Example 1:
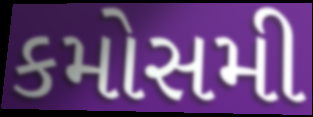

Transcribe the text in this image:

કમોસમી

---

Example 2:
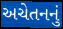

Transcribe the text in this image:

અચેતનનું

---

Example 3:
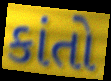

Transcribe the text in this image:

કાંતો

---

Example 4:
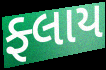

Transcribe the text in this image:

ફ્લાય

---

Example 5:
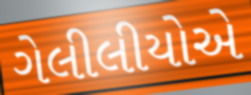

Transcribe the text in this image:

ગેલીલીયોએ